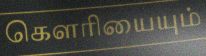
கௌரியையும்